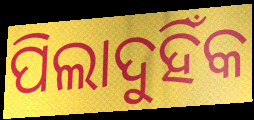
ପିଲାଦୁହିଁକ